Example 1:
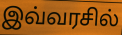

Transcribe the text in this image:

இவ்வரசில்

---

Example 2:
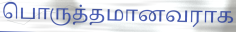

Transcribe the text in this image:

பொருத்தமானவராக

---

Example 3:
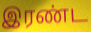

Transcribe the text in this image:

இரண்ட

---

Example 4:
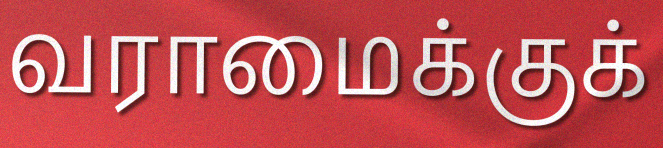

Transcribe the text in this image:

வராமைக்குக்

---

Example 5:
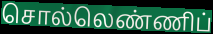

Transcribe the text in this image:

சொல்லெண்ணிப்